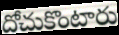
దోచుకొంటారు